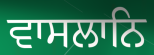
ਵਾਸਲਾਨਿ